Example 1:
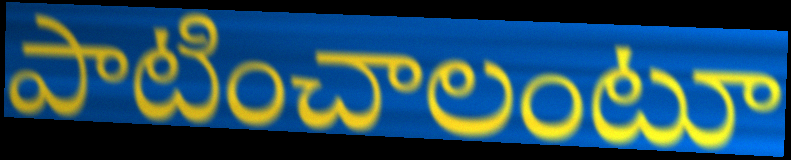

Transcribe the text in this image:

పాటించాలంటూ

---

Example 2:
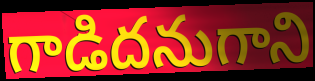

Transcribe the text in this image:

గాడిదనుగాని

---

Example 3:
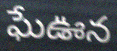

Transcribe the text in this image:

ఘేఊన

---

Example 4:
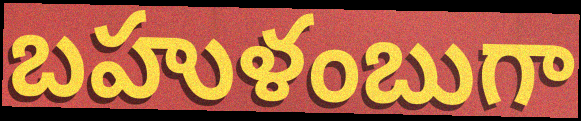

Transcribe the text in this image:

బహుళంబుగా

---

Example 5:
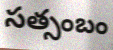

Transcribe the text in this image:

సత్సంబం